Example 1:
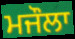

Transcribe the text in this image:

ਮਜੌਲਾ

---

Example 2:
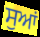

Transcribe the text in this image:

ਸੁਆਂ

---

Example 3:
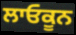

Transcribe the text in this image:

ਲਾਓਕੂਨ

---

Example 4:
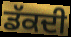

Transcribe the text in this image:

ਡੱਕਦੀ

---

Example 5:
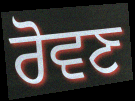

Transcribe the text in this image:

ਰੋਵਣ